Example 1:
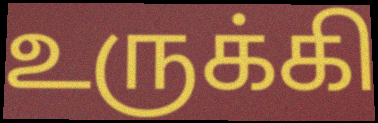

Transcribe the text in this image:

உருக்கி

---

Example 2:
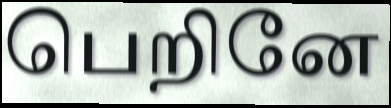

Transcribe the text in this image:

பெறினே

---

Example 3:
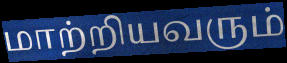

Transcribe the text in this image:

மாற்றியவரும்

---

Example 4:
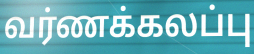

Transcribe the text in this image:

வர்ணக்கலப்பு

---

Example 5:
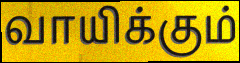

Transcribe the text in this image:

வாயிக்கும்